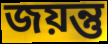
জয়ন্তু